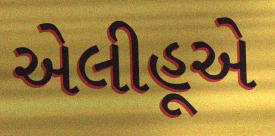
એલીહૂએ